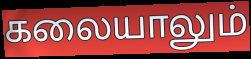
கலையாலும்